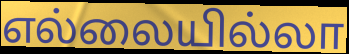
எல்லையில்லா